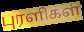
புரளிகள்